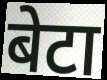
बेटा